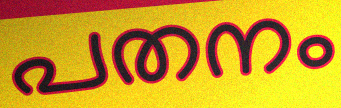
പതനം